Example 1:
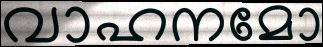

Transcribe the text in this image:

വാഹനമോ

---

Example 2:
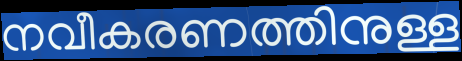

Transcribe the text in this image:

നവീകരണത്തിനുള്ള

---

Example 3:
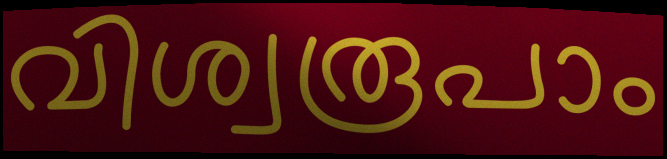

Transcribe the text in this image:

വിശ്വരൂപാം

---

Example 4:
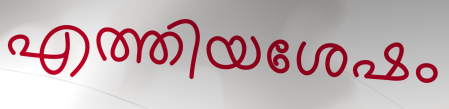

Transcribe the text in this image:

എത്തിയശേഷം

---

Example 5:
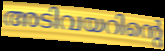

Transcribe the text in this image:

അടിവയറിന്റെ